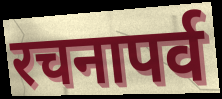
रचनापर्व